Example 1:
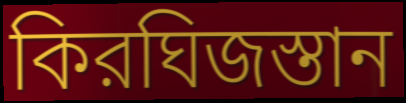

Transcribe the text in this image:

কিরঘিজস্তান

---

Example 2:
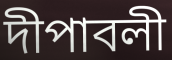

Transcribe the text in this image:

দীপাবলী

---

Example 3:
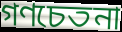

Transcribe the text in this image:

গণচেতনা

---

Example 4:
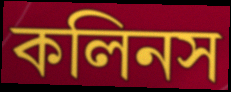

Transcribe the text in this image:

কলিনস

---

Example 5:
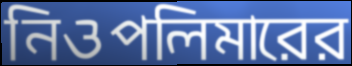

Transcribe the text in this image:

নিওপলিমারের